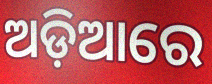
ଅଡ଼ିଆରେ